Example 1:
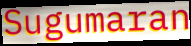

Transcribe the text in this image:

Sugumaran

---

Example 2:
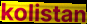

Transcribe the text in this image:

kolistan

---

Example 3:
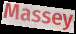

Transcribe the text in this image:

Massey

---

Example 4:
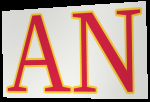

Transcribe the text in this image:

AN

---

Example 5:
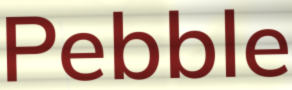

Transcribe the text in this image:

Pebble